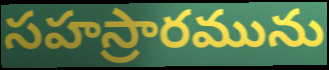
సహస్రారమును